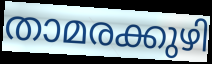
താമരക്കുഴി